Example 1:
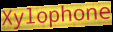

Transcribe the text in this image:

Xylophone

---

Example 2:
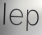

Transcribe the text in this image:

lep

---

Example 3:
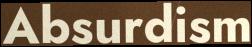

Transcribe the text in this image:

Absurdism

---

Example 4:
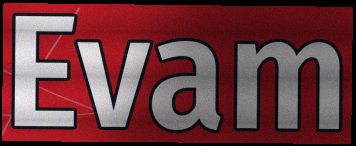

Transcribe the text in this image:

Evam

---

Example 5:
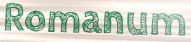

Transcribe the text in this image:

Romanum